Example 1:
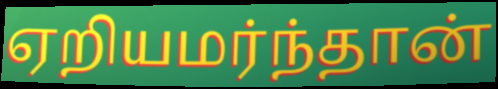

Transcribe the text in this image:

ஏறியமர்ந்தான்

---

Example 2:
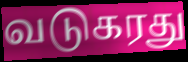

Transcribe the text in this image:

வடுகரது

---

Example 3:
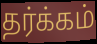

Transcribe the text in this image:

தர்க்கம்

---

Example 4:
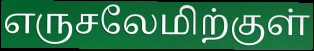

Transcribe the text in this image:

எருசலேமிற்குள்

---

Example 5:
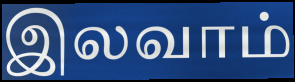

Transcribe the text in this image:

இலவாம்